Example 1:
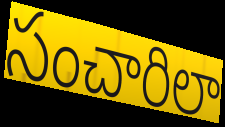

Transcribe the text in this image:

సంచారిలా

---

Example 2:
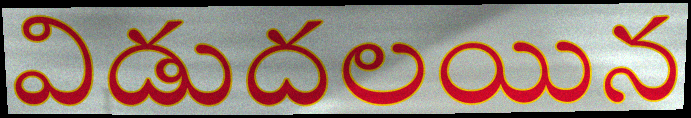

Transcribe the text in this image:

విడుదలయిన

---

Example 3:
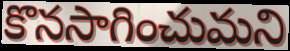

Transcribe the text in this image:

కొనసాగించుమని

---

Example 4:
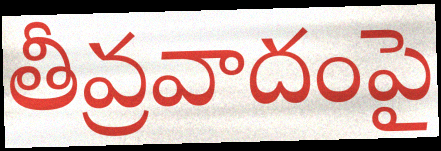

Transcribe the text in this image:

తీవ్రవాదంపై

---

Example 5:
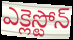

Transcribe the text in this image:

ఎక్లెస్టోన్